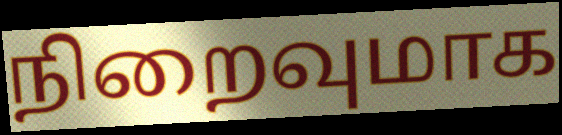
நிறைவுமாக